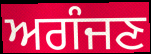
ਅਗੰਜਣ